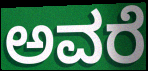
ಅವರೆ